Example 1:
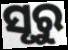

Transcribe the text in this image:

ସୃରୁ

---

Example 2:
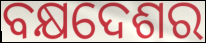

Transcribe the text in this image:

ବକ୍ଷଦେଶର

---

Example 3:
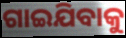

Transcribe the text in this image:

ଗାଇଯିବାକୁ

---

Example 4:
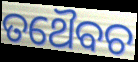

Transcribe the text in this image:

ତଥୈବଚ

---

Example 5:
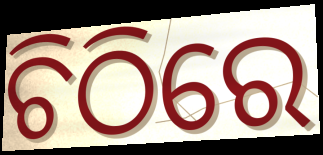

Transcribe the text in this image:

ଚିଠିରେ